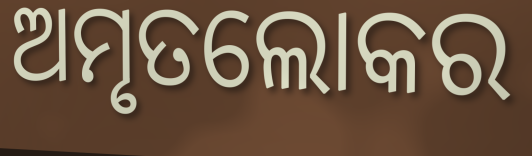
ଅମୃତଲୋକର